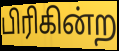
பிரிகின்ற